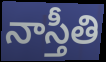
నాస్తీతి